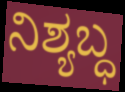
ನಿಶ್ಯಬ್ಧ